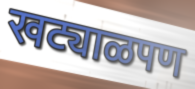
खट्याळपण